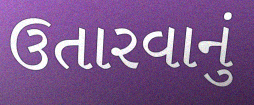
ઉતારવાનું